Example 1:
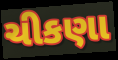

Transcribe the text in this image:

ચીકણા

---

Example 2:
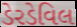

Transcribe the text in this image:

ડેરડેવિલ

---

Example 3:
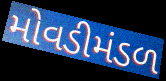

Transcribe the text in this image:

મોવડીમંડળ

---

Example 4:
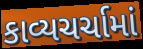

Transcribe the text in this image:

કાવ્યચર્ચામાં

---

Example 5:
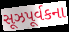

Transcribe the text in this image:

સૂઝપૂર્વકના